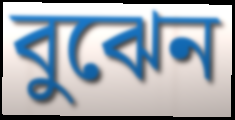
বুঝেন